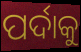
ପର୍ଦାକୁ